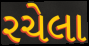
રચેલા